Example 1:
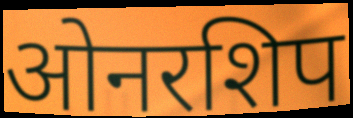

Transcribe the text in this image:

ओनरशिप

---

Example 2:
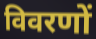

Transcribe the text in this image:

विवरणों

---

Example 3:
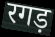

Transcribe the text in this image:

रगड़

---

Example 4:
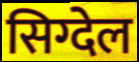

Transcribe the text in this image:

सिग्देल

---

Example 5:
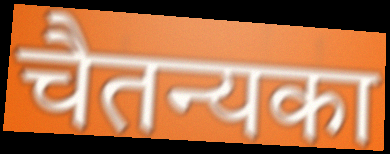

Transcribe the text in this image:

चैतन्यका